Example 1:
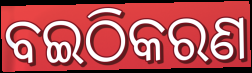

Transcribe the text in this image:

ବଇଠିକରଣ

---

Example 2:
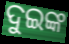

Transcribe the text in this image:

ଦୁଇଙ୍କ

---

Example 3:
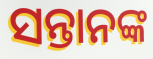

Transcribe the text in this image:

ସନ୍ତାନଙ୍କ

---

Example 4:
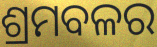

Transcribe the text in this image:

ଶ୍ରମବଳର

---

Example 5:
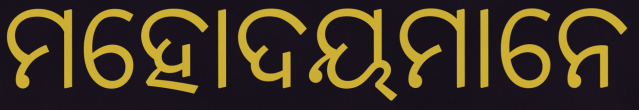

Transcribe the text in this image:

ମହୋଦୟମାନେ